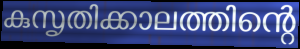
കുസൃതിക്കാലത്തിന്റെ